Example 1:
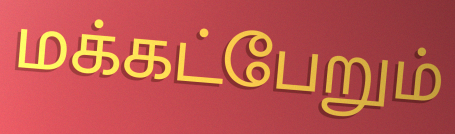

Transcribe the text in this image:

மக்கட்பேறும்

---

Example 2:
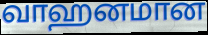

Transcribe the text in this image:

வாஹனமான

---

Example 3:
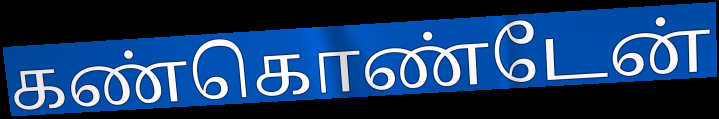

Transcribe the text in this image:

கண்கொண்டேன்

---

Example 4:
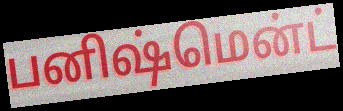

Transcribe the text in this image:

பனிஷ்மென்ட்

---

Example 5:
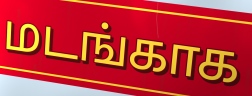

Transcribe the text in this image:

மடங்காக